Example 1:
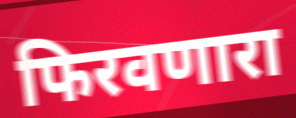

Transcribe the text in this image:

फिरवणारा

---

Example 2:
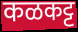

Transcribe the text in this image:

कळकट्ट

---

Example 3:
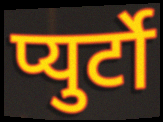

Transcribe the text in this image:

प्युर्टो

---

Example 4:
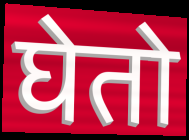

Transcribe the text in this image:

घेतो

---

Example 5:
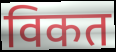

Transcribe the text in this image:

विकत